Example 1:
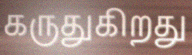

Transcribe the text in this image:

கருதுகிறது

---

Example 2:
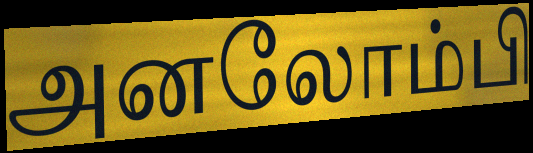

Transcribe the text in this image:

அனலோம்பி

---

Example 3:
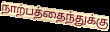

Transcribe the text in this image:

நாற்பத்தைந்துக்கு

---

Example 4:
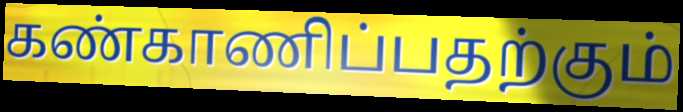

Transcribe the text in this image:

கண்காணிப்பதற்கும்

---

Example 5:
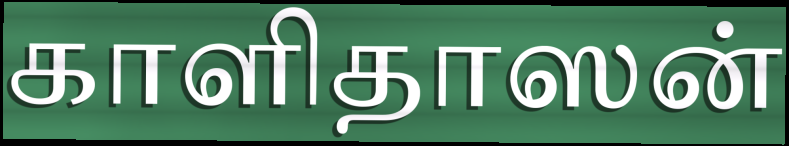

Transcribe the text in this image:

காளிதாஸன்